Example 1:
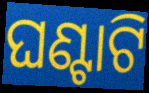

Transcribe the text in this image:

ଘଣ୍ଟାଟି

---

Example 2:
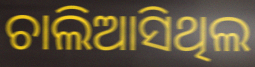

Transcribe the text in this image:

ଚାଲିଆସିଥିଲ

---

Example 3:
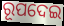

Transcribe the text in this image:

ରୂପଦେଇ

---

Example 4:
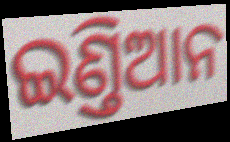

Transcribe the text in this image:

ଇଣ୍ତିଆନ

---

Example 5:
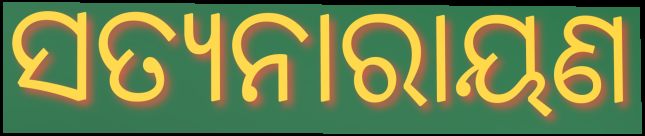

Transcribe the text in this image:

ସତ୍ୟନାରାୟଣ